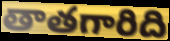
తాతగారిది